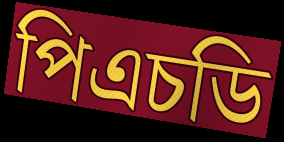
পিএচডি